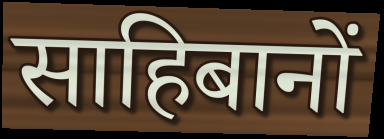
साहिबानों